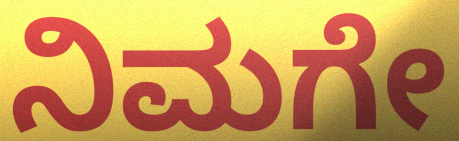
ನಿಮಗೇ